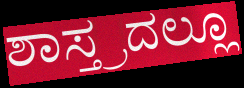
ಶಾಸ್ತ್ರದಲ್ಲೂ